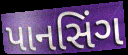
પાનસિંગ